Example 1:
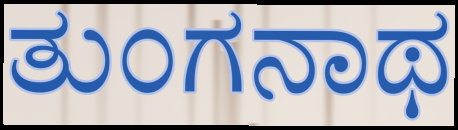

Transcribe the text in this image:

ತುಂಗನಾಥ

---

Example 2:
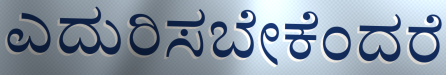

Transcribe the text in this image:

ಎದುರಿಸಬೇಕೆಂದರೆ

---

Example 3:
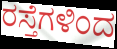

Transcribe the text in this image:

ರಸ್ತೆಗಳಿಂದ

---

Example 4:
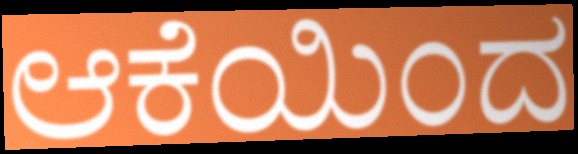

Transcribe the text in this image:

ಆಕೆಯಿಂದ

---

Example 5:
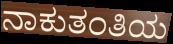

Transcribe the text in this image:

ನಾಕುತಂತಿಯ